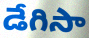
డేగిసా